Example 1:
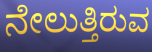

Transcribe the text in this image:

ನೇಲುತ್ತಿರುವ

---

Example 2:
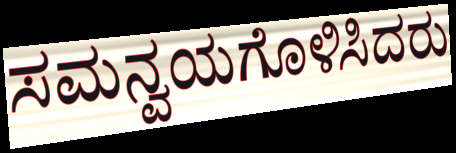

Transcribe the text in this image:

ಸಮನ್ವಯಗೊಳಿಸಿದರು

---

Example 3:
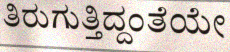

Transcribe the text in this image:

ತಿರುಗುತ್ತಿದ್ದಂತೆಯೇ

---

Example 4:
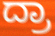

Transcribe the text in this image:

ದ್ರಾ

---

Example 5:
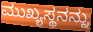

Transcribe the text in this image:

ಮುಖ್ಯಸ್ಥನನ್ನು